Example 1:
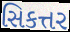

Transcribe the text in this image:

સિકત્તર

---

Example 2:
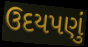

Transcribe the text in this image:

ઉદયપણું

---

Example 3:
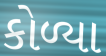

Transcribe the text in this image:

કોળ્યા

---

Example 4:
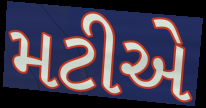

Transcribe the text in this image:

મટીએ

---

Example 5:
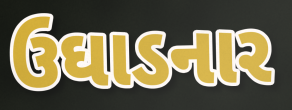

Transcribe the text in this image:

ઉઘાડનાર